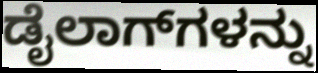
ಡೈಲಾಗ್‌ಗಳನ್ನು